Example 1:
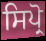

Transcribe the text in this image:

ਸਿਪ੍ਰੋ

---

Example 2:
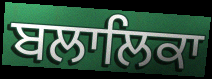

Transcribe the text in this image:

ਬਲਾਲਿਕਾ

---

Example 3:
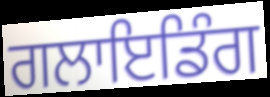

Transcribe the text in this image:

ਗਲਾਇਡਿੰਗ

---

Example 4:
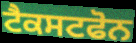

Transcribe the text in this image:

ਟੈਕਸਟਫੋਨ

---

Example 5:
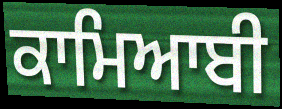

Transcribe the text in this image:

ਕਾਮਿਆਬੀ